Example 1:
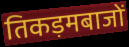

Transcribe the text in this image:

तिकड़मबाजों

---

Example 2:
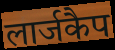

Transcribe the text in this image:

लार्जकैप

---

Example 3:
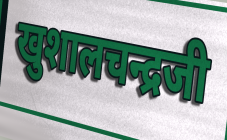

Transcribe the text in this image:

खुशालचन्द्रजी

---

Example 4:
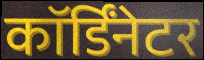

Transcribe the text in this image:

कॉर्डिंनेटर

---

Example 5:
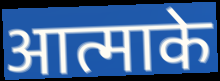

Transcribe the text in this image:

आत्माके